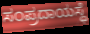
ಸಂಪ್ರದಾಯಸ್ಥೆ